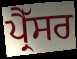
ਪ੍ਰੈੱਸਰ